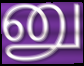
னு